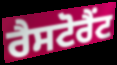
ਰੈਸਟੋਰੈਂਟ